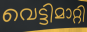
വെട്ടിമാറ്റി